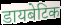
डायबेटिक